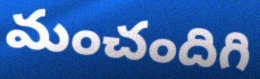
మంచందిగి